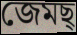
জেমছ্